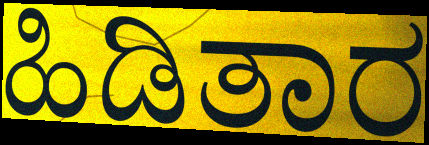
ಹಿಡಿತಾರ